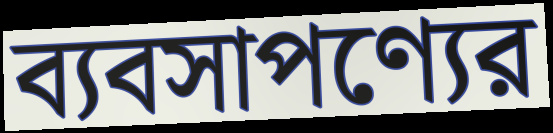
ব্যবসাপণ্যের